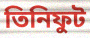
তিনিফুট